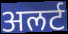
अलर्ट